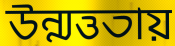
উন্মত্ততায়